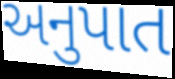
અનુપાત